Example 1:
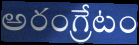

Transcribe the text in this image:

అరంగ్రేటం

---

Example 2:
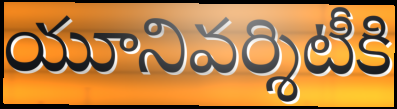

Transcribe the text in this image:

యూనివర్శిటీకి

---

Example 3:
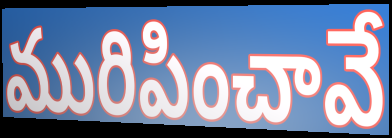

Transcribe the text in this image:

మురిపించావే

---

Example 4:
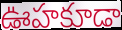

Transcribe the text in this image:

ఊహకూడా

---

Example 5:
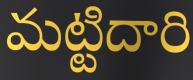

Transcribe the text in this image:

మట్టిదారి